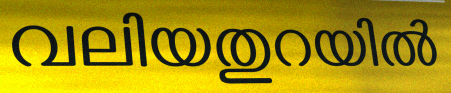
വലിയതുറയിൽ